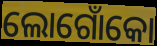
ଲୋଗୋଁକୋ